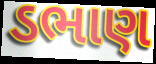
ડભાણ